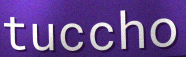
tuccho